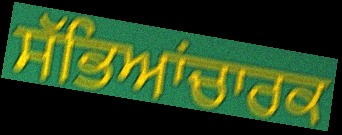
ਸੱਭਿਆਂਚਾਰਕ